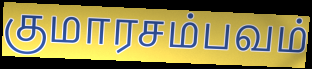
குமாரசம்பவம்